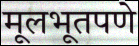
मूलभूतपणे